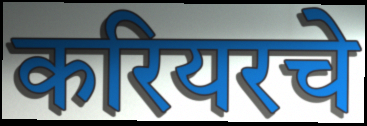
करियरचे